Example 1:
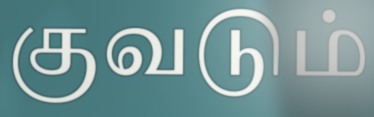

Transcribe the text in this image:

குவடும்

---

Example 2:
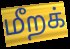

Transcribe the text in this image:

மீறக்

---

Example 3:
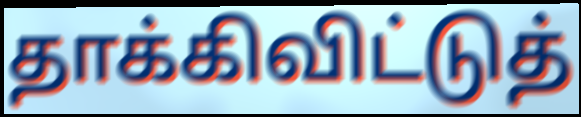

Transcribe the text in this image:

தாக்கிவிட்டுத்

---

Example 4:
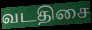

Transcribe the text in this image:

வடதிசை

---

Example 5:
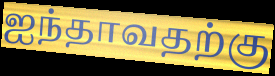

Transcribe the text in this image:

ஐந்தாவதற்கு